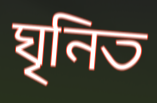
ঘৃনিত